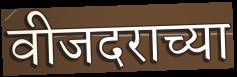
वीजदराच्या